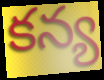
కన్య